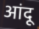
आंदू